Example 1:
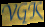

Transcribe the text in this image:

VGK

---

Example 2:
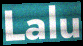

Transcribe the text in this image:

Lalu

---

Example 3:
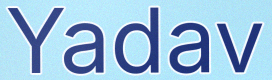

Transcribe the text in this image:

Yadav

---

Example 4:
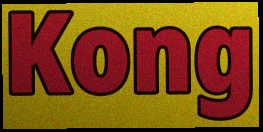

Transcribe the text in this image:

Kong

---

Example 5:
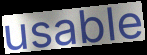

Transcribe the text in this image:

usable